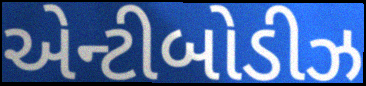
એન્ટીબોડીઝ